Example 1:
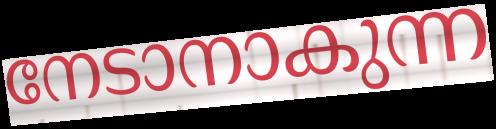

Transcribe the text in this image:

നേടാനാകുന്ന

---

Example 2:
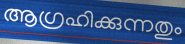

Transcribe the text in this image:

ആഗ്രഹിക്കുന്നതും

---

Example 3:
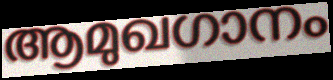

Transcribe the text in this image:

ആമുഖഗാനം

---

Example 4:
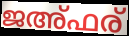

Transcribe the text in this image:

ജഅ്ഫര്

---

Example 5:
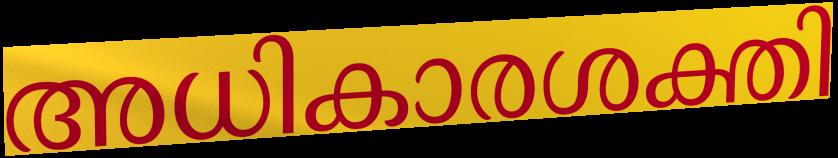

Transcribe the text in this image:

അധികാരശക്തി